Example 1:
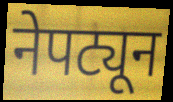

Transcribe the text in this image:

नेपट्यून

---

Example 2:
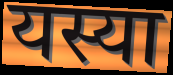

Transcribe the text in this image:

यस्या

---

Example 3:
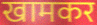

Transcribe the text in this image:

खामकर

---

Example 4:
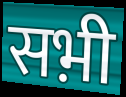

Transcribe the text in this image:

सभ़ी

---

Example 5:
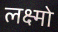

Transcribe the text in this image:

लक्ष्मो